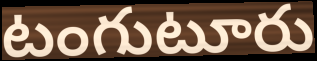
టంగుటూరు